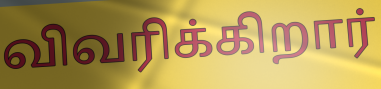
விவரிக்கிறார்